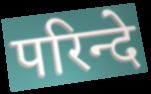
परिन्दे